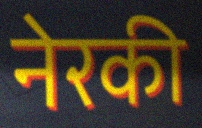
नेरकी